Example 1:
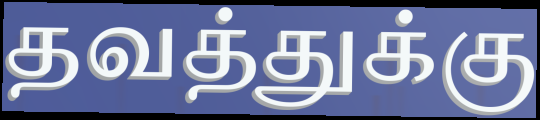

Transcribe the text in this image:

தவத்துக்கு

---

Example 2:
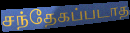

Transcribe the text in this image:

சந்தேகப்படாத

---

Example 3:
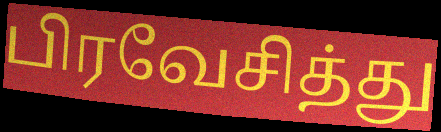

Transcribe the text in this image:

பிரவேசித்து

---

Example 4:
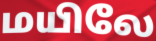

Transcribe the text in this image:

மயிலே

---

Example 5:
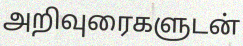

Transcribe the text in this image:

அறிவுரைகளுடன்